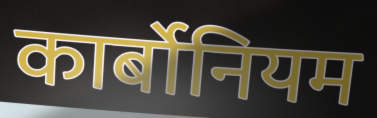
कार्बोनियम